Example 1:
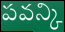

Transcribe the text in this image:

పవన్కి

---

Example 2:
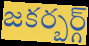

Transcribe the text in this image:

జకర్బర్గ్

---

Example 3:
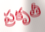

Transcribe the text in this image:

ప్రకృతీ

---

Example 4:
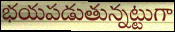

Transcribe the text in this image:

భయపడుతున్నట్టుగా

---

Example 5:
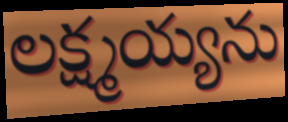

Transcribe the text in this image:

లక్ష్మయ్యను